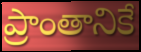
ప్రాంతానికే